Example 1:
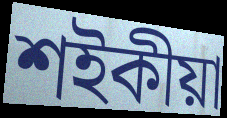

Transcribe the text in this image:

শইকীয়া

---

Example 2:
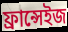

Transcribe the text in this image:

ফ্ৰান্সেইজ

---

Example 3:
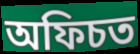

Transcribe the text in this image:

অফিচত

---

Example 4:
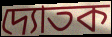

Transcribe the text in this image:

দ্যোতক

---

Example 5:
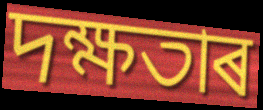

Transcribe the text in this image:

দক্ষতাৰ